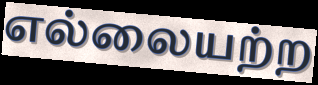
எல்லையற்ற